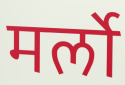
मर्लो